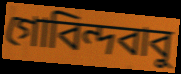
গোবিন্দবাবু